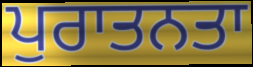
ਪੁਰਾਤਨਤਾ